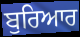
ਬੁਰਿਆਰ